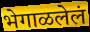
भेगाळलेलं